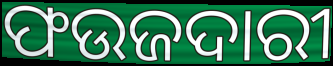
ଫଉଜଦାରୀ